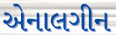
એનાલગીન